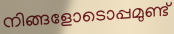
നിങ്ങളോടൊപ്പമുണ്ട്